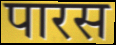
पारस